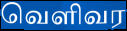
வெளிவர